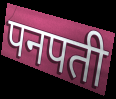
पनपती